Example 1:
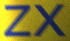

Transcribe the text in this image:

zx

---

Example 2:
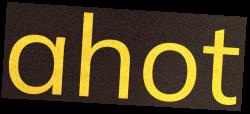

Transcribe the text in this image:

ahot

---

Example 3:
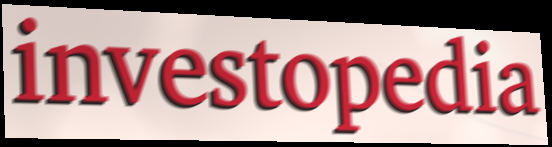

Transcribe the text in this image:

investopedia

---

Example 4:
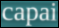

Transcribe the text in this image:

capai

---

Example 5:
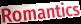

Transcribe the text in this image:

Romantics